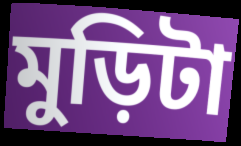
মুড়িটা